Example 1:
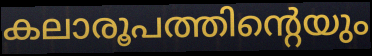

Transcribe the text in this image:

കലാരൂപത്തിന്റെയും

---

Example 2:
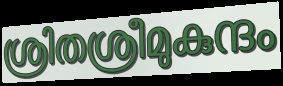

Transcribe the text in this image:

ശ്രിതശ്രീമുകുന്ദം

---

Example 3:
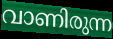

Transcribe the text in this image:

വാണിരുന്ന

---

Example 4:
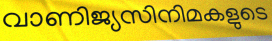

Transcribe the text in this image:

വാണിജ്യസിനിമകളുടെ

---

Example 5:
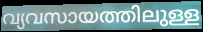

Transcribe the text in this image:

വ്യവസായത്തിലുള്ള